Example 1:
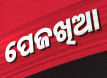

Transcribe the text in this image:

ପେଜଖିଆ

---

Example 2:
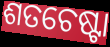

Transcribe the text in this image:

ଶତଚେଷ୍ଟା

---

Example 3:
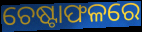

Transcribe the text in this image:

ଚେଷ୍ଟାଫଳରେ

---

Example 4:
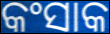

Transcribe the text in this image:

କଂସାକ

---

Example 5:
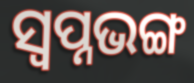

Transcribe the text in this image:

ସ୍ୱପ୍ନଭଙ୍ଗ